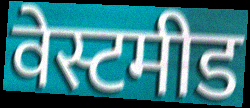
वेस्टमीड